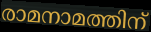
രാമനാമത്തിന്